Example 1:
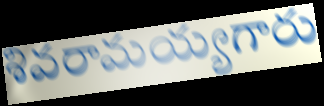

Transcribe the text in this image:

శివరామయ్యగారు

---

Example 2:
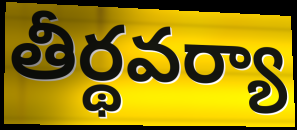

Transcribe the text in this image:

తీర్థవర్యా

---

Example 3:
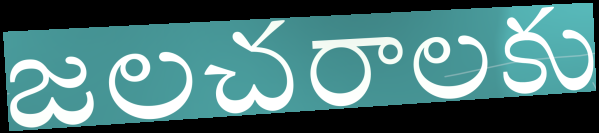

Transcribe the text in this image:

జలచరాలకు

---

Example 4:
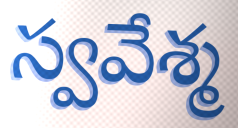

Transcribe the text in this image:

స్వవేశ్మ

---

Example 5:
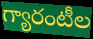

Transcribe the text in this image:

గ్యారంటీల